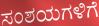
ಸಂಶಯಗಳಿಗೆ